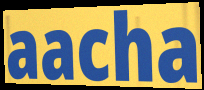
aacha